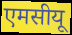
एमसीयू